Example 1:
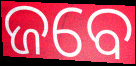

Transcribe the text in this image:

ଜବେ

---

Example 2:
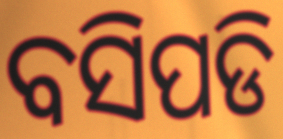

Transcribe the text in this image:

ବସିପଡି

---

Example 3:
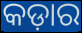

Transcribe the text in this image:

କଡ଼ାର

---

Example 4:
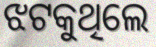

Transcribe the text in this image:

ଝଟକୁଥିଲେ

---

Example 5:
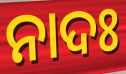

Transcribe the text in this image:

ନାଦଃ